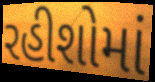
રહીશોમાં